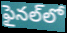
ఫైనల్‌లో